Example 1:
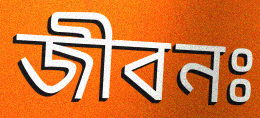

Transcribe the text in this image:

জীবনঃ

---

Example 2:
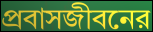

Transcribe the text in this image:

প্রবাসজীবনের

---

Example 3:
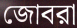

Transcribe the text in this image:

জোবরা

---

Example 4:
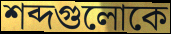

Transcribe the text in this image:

শব্দগুলোকে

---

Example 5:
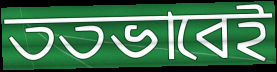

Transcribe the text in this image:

ততভাবেই